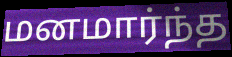
மனமார்ந்த